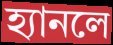
হ্যানলে